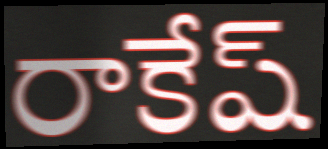
రాకేష్